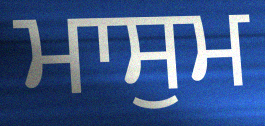
ਮਾਸੁਮ